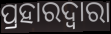
ପ୍ରହାରଦ୍ଵାରା